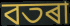
বতৰা